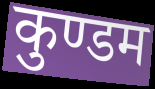
कुण्डम